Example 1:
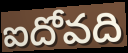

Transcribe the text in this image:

ఐదోవది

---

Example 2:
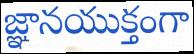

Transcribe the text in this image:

జ్ఞానయుక్తంగా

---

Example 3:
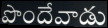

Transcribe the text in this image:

పొందేవాడు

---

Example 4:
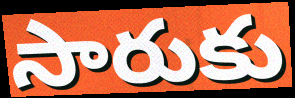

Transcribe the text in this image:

సారుకు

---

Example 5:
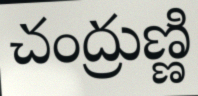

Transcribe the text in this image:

చంద్రుణ్ణి